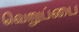
வெறுப்பை